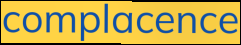
complacence